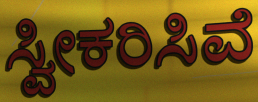
ಸ್ವೀಕರಿಸಿವೆ